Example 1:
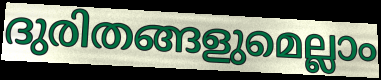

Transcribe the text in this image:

ദുരിതങ്ങളുമെല്ലാം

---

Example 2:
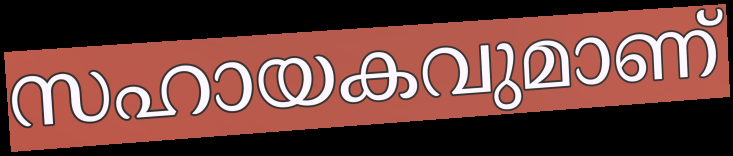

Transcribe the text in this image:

സഹായകവുമാണ്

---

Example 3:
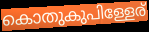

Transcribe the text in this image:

കൊതുകുപിള്ളേര്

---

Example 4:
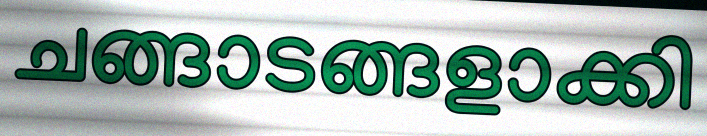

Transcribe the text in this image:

ചങ്ങാടങ്ങളാക്കി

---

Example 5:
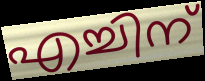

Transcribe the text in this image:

എച്ചിന്